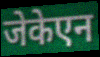
जेकेएन